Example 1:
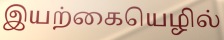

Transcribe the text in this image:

இயற்கையெழில்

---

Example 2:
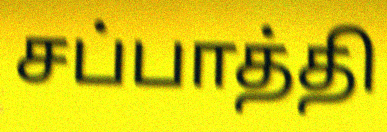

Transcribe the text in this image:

சப்பாத்தி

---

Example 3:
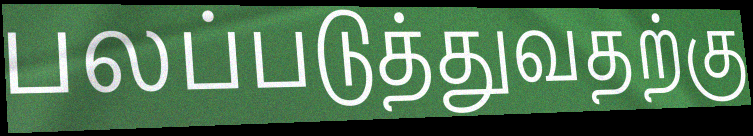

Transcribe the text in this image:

பலப்படுத்துவதற்கு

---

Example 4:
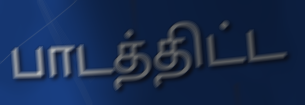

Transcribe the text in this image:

பாடத்திட்ட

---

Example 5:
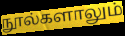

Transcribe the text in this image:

நூல்களாலும்